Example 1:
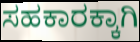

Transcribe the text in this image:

ಸಹಕಾರಕ್ಕಾಗಿ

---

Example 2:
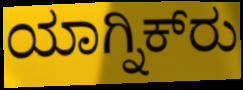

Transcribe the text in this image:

ಯಾಗ್ನಿಕ್‍ರು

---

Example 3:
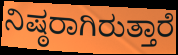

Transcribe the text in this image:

ನಿಷ್ಠರಾಗಿರುತ್ತಾರೆ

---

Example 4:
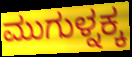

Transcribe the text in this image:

ಮುಗುಳ್ನಕ್ಕ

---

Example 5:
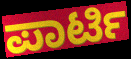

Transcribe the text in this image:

ಪಾರ್ಟಿ